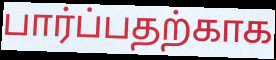
பார்ப்பதற்காக